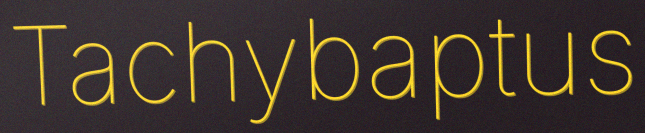
Tachybaptus